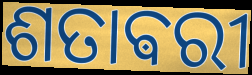
ଶତାଵରୀ